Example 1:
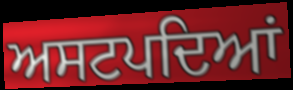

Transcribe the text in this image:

ਅਸਟਪਦਿਆਂ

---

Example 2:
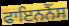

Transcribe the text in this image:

ਫਾਇਨਨੈੱਸ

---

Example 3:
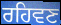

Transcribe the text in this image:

ਰਹਿਵਣ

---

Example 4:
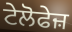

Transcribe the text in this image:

ਟੇਲੋਫੇਜ਼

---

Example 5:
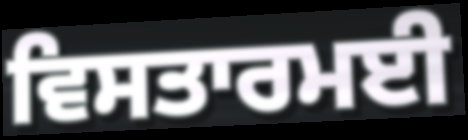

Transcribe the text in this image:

ਵਿਸਤਾਰਮਈ